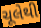
ચૂલેથી